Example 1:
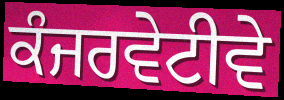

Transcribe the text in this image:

ਕੰਜਰਵੇਟੀਵੇ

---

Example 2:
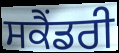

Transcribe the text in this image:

ਸਕੈਂਡਰੀ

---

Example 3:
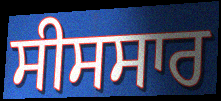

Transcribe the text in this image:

ਸੀਸਸਾਰ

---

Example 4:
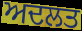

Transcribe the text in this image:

ਅਦਲਤ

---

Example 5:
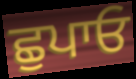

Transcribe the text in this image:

ਛੁਪਾਓ